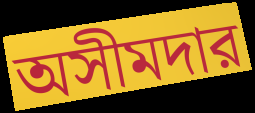
অসীমদার